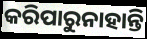
କରିପାରୁନାହାନ୍ତି